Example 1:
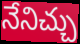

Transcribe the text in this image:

నేనిచ్చు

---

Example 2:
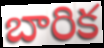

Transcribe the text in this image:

బారిక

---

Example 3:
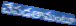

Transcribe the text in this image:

చేపడతామంటూ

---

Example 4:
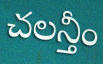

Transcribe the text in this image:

చలన్తీం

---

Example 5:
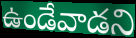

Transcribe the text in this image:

ఉండేవాడని